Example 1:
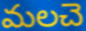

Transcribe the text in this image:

మలచె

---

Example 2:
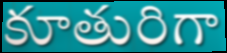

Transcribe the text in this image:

కూతురిగా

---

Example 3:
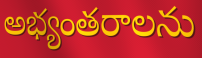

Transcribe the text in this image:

అభ్యంతరాలను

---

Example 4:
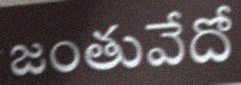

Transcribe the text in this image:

జంతువేదో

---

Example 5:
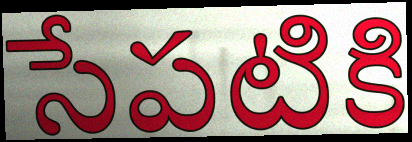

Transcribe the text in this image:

సేపటికి